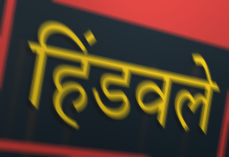
हिंडवले